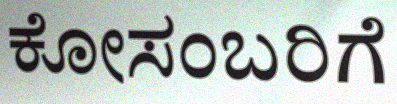
ಕೋಸಂಬರಿಗೆ